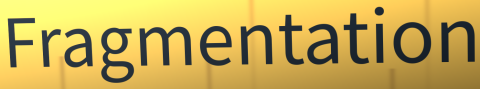
Fragmentation